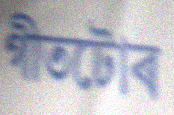
গীতটোৰ